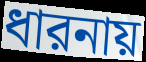
ধারনায়